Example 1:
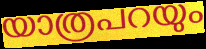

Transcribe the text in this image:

യാത്രപറയും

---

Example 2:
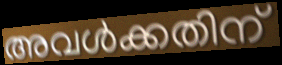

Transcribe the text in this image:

അവൾക്കതിന്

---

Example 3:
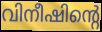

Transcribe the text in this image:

വിനീഷിന്റെ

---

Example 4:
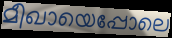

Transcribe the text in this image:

മീഖായെപ്പോലെ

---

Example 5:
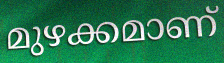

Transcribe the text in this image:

മുഴക്കമാണ്